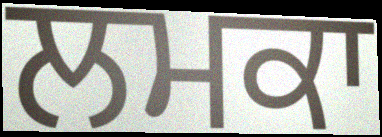
ਲਮਕਾ